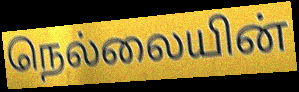
நெல்லையின்